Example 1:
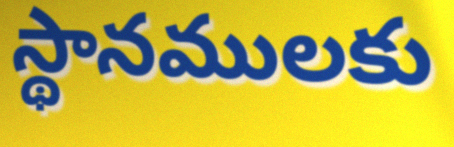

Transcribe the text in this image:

స్థానములకు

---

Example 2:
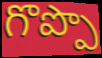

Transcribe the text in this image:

గొప్పొ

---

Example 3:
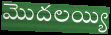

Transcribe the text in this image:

మొదలయ్యి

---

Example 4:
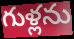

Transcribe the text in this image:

గుళ్లను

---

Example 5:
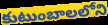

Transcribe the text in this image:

కుటుంబాలలోని